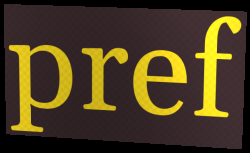
pref